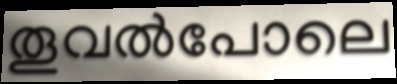
തൂവൽപോലെ